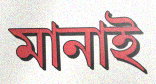
মানাই